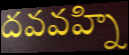
దవవహ్ని